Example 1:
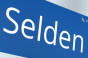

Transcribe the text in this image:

Selden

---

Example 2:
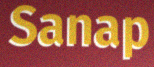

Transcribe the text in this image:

Sanap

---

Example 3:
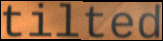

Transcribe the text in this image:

tilted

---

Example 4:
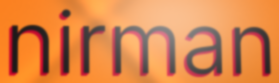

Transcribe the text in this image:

nirman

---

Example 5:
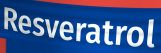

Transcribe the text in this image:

Resveratrol